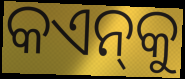
କଏନ୍‌କୁ